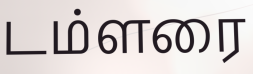
டம்ளரை